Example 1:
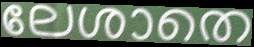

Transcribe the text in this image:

ലേശാതെ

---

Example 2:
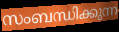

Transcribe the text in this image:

സംബന്ധിക്കുന്ന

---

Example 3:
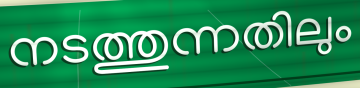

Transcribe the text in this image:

നടത്തുന്നതിലും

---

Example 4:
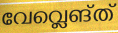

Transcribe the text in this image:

വേവ്ലെങ്ത്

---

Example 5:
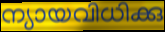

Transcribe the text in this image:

ന്യായവിധിക്കു